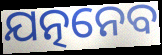
ଯତ୍ନନେବ